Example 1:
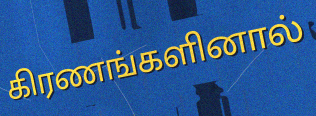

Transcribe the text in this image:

கிரணங்களினால்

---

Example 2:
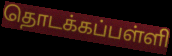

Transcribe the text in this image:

தொடக்கப்பள்ளி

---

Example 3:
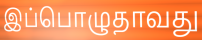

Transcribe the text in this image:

இப்பொழுதாவது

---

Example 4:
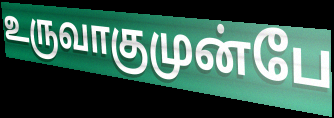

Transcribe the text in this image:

உருவாகுமுன்பே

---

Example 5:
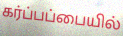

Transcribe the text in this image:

கர்ப்பப்பையில்